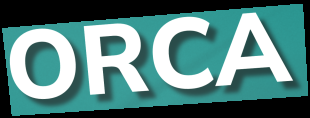
ORCA